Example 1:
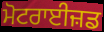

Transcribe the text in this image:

ਮੋਟਰਾਈਜ਼ਡ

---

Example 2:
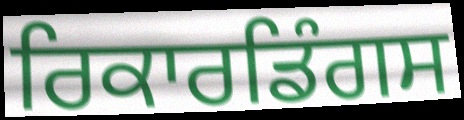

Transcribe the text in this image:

ਰਿਕਾਰਡਿੰਗਸ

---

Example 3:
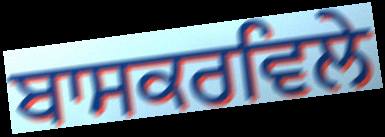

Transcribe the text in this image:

ਬਾਸਕਰਵਿਲੇ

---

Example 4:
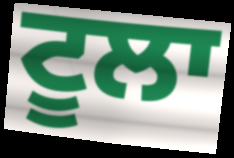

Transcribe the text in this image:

ਟੂਲਾ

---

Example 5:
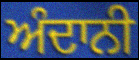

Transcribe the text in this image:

ਅੰਦਾਨੀ